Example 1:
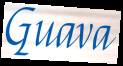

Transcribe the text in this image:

Guava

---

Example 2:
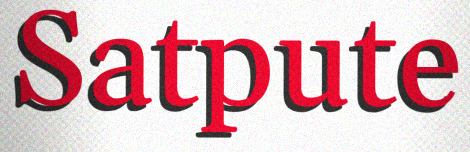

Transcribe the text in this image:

Satpute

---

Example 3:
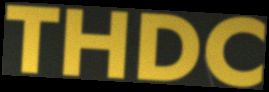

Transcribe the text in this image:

THDC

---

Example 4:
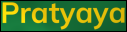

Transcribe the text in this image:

Pratyaya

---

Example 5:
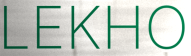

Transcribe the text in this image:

LEKHO